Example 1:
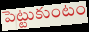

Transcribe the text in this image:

పెట్టుకుంటం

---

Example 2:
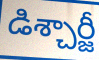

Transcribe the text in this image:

డిశ్చార్జీ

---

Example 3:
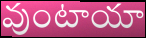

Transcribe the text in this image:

వుంటాయా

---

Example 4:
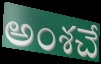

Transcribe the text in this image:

అంశచే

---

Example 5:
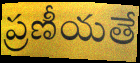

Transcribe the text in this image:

ప్రణీయతే